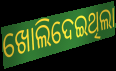
ଖୋଲିଦେଇଥିଲା